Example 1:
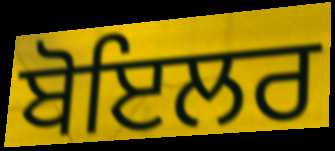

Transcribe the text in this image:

ਬੋਇਲਰ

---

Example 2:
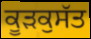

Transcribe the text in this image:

ਕੂੜਕੁਸੱਤ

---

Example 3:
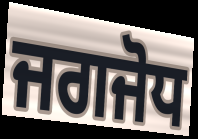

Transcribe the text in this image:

ਜਗਜੋਧ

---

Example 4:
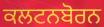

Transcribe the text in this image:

ਕਲਟਨਬੋਰਨ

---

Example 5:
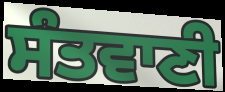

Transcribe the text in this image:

ਸੰਤਵਾਣੀ